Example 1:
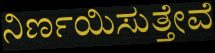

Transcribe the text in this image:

ನಿರ್ಣಯಿಸುತ್ತೇವೆ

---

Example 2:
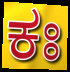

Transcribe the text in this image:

ಕಃ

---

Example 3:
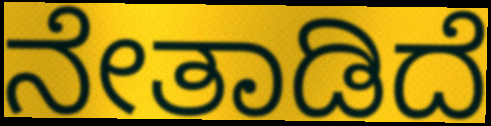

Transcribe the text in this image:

ನೇತಾಡಿದೆ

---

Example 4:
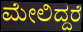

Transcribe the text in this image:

ಮೇಲಿದ್ದರೆ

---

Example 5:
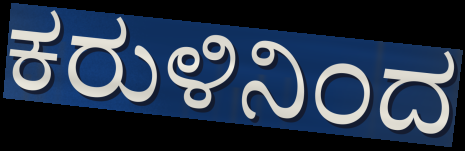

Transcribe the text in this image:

ಕರುಳಿನಿಂದ